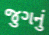
જુગનું